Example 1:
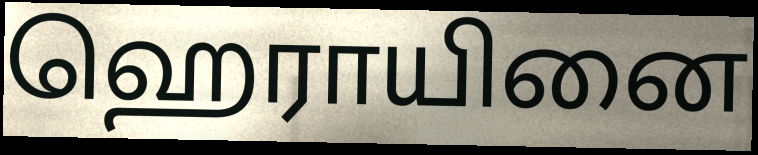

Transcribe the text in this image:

ஹெராயினை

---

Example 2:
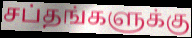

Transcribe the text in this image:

சப்தங்களுக்கு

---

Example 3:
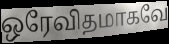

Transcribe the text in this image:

ஒரேவிதமாகவே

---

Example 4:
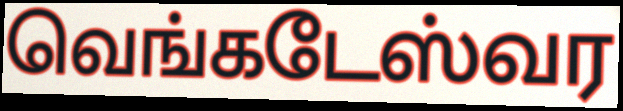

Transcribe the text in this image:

வெங்கடேஸ்வர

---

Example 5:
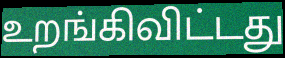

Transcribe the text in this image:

உறங்கிவிட்டது